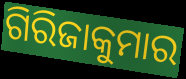
ଗିରିଜାକୁମାର